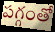
పగ్గంతో